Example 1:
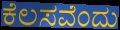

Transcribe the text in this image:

ಕೆಲಸವೆಂದು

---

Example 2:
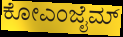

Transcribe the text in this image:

ಕೋಎಂಜೈಮ್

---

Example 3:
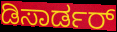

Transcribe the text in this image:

ಡಿಸಾರ್ಡರ್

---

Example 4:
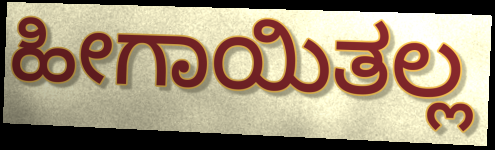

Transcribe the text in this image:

ಹೀಗಾಯಿತಲ್ಲ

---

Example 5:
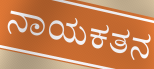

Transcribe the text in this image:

ನಾಯಕತನ